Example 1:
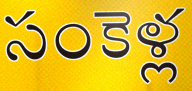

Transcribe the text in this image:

సంకెళ్ల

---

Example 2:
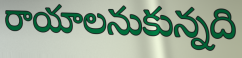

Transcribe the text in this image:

రాయాలనుకున్నది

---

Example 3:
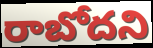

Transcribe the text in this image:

రాబోదని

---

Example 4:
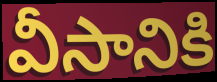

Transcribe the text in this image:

వీసానికి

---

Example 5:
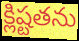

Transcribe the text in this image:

క్లిష్టతను